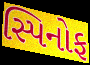
સ્પિનોફ